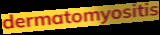
dermatomyositis